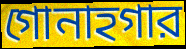
গোনাহগার